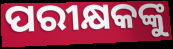
ପରୀକ୍ଷକଙ୍କୁ